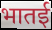
भातई